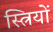
स्त्रियों